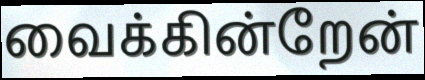
வைக்கின்றேன்